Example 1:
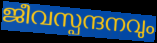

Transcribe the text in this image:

ജീവസ്പന്ദനവും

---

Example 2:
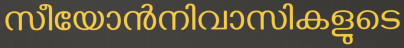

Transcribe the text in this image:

സീയോൻനിവാസികളുടെ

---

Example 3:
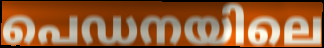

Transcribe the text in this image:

പെഡനയിലെ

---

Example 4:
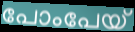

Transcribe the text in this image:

പോംപേയ്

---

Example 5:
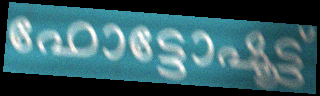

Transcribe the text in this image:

ഫോട്ടോഷൂട്ട്